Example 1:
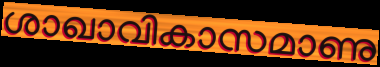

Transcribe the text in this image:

ശാഖാവികാസമാണു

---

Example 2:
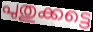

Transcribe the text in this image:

പുതുക്കട്ടെ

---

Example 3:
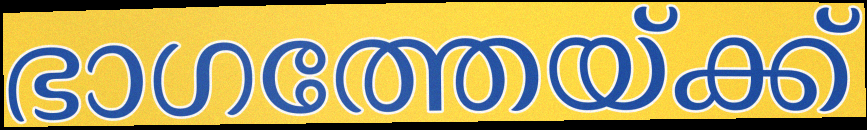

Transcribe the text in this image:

ഭാഗത്തേയ്ക്ക്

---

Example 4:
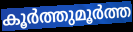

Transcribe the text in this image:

കൂർത്തുമൂർത്ത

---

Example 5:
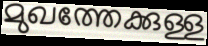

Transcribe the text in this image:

മുഖത്തേക്കുള്ള